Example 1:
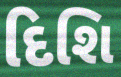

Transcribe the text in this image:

દિશિ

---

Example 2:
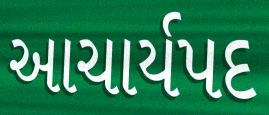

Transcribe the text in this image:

આચાર્યપદ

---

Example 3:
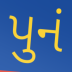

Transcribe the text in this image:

પુનં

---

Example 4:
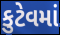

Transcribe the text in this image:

કુટેવમાં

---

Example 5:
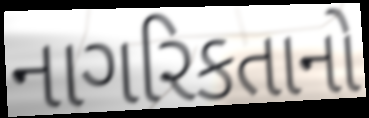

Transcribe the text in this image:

નાગરિકતાનો